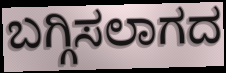
ಬಗ್ಗಿಸಲಾಗದ